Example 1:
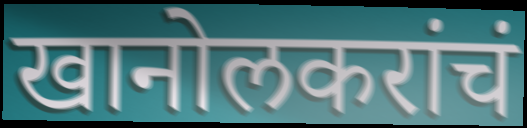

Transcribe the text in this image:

खानोलकरांचं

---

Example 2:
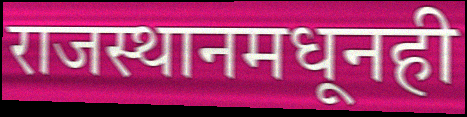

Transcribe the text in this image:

राजस्थानमधूनही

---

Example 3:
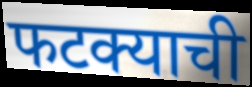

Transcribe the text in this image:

फटक्याची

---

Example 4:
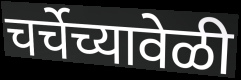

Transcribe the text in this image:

चर्चेच्यावेळी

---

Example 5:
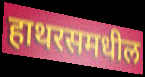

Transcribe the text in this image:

हाथरसमधील